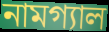
নামগ্যাল